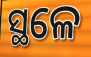
ସ୍ଥଳେ